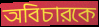
অবিচারকে